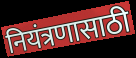
नियंत्रणासाठी